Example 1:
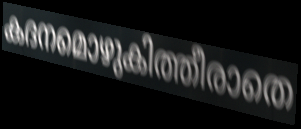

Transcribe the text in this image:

കദനമൊഴുകിത്തീരാതെ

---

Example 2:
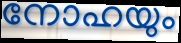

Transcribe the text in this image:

നോഹയും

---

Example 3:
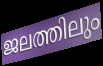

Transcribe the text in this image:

ജലത്തിലും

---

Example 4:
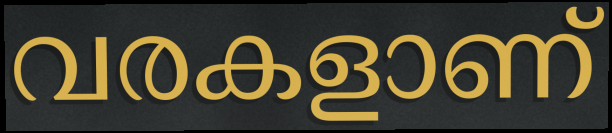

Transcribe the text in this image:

വരകളാണ്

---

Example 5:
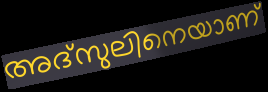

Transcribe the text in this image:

അദ്സുലിനെയാണ്